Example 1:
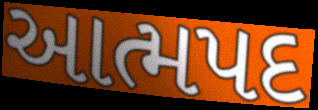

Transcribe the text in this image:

આત્મપદ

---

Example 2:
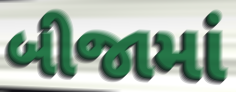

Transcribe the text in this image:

બીજામાં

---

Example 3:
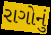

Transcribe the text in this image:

રાગોનું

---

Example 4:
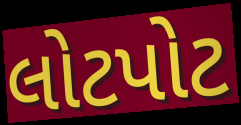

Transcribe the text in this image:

લોટપોટ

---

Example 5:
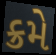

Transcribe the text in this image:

ક્રમે